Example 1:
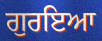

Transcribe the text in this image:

ਗੁਰਇਆ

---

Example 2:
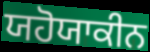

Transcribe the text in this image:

ਯਹੋਯਾਕੀਨ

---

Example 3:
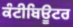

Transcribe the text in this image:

ਕੰਟੀਬਿਊਟਰ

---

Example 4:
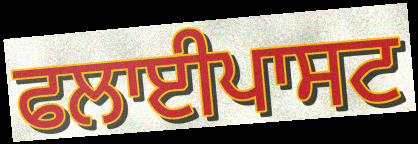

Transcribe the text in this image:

ਫਲਾਈਪਾਸਟ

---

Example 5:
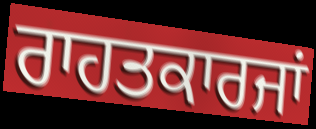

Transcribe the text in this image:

ਰਾਹਤਕਾਰਜਾਂ